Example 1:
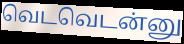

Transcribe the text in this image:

வெடவெடன்னு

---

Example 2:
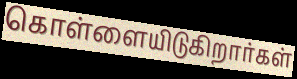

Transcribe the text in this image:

கொள்ளையிடுகிறார்கள்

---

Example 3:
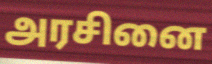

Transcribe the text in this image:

அரசினை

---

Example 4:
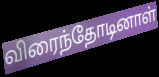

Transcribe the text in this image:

விரைந்தோடினாள்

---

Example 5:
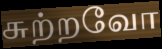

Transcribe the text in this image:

சுற்றவோ